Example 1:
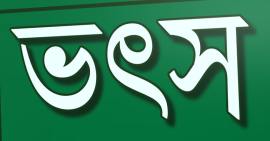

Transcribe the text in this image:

ভৎস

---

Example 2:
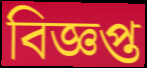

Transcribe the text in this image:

বিজ্ঞপ্ত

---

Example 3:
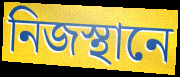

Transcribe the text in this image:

নিজস্থানে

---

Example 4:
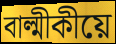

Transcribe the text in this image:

বাল্মীকীয়ে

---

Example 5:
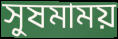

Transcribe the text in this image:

সুষমাময়